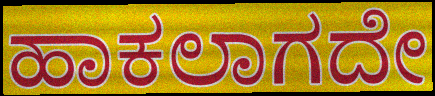
ಹಾಕಲಾಗದೇ